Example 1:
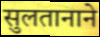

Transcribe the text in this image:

सुलतानाने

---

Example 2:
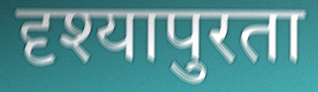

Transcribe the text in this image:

दृश्यापुरता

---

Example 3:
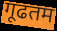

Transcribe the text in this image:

गूढतम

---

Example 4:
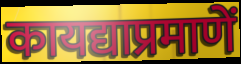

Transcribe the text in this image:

कायद्याप्रमाणें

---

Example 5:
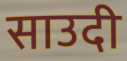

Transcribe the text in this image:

साउदी